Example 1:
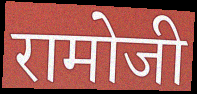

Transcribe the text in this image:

रामोजी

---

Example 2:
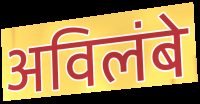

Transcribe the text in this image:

अविलंबे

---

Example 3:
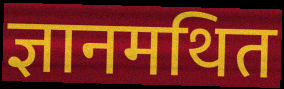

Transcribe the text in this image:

ज्ञानमथित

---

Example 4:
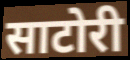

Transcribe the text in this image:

साटोरी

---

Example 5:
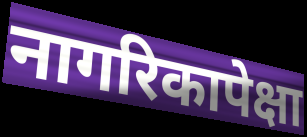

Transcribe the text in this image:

नागरिकापेक्षा